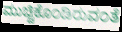
ಮುಚ್ಚಿಕೊಂಡಿರುವಂತೆ